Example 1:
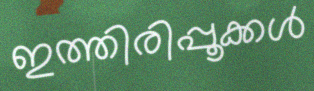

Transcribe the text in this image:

ഇത്തിരിപ്പൂക്കൾ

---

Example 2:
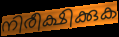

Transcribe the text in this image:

നിരീക്ഷിക്കുക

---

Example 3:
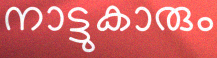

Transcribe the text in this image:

നാട്ടുകാരും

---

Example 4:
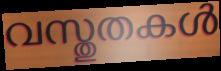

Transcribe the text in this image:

വസ്തുതകൾ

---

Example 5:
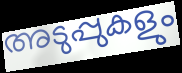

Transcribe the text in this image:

അടുപ്പുകളും